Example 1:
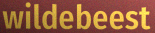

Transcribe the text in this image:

wildebeest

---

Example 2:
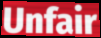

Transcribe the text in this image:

Unfair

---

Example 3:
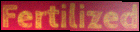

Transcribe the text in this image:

Fertilized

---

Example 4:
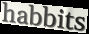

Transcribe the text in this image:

habbits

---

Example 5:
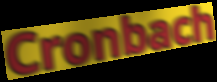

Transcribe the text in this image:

Cronbach